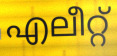
എലീറ്റ്